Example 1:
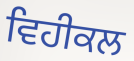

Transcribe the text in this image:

ਵਿਹੀਕਲ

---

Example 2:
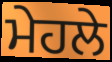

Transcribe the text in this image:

ਮੇਹਲੇ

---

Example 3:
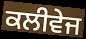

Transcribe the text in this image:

ਕਲੀਵੇਜ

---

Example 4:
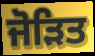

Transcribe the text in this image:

ਜੋੜਿਤ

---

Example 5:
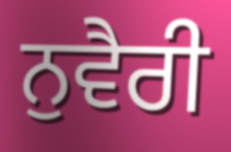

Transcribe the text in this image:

ਨੁਵੈਰੀ